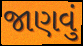
જાણવું